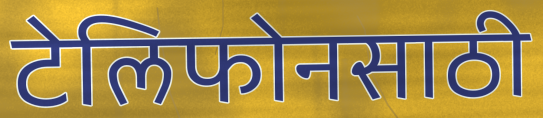
टेलिफोनसाठी